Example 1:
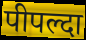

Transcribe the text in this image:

पीपल्दा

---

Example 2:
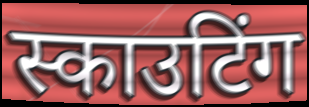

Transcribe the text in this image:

स्काउटिंग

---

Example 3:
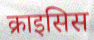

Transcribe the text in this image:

क्राइसिस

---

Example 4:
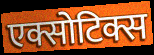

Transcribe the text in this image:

एक्सोटिक्स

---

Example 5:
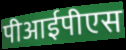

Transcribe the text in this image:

पीआईपीएस